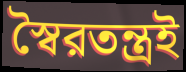
স্বৈরতন্ত্রই